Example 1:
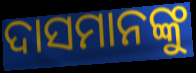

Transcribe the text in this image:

ଦାସମାନଙ୍କୁ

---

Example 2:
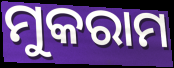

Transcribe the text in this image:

ମୁକରାମ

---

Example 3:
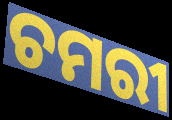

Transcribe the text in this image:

ଚମରୀ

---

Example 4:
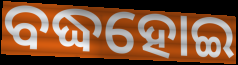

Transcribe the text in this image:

ବଦ୍ଧହୋଇ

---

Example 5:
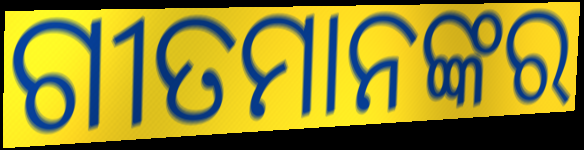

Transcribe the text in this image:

ଗୀତମାନଙ୍କର